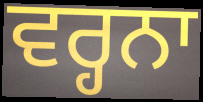
ਵਰ੍ਹਨਾ